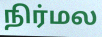
நிர்மல